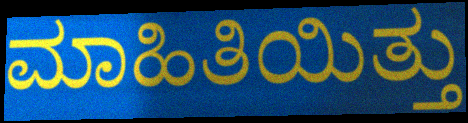
ಮಾಹಿತಿಯಿತ್ತು